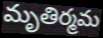
మృతిర్మమ